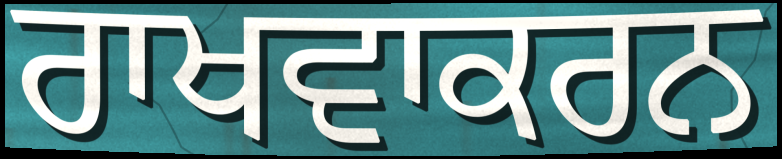
ਰਾਖਵਾਕਰਨ